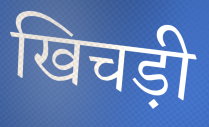
खिचड़ी